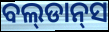
ବଲ୍‌ଡାନ୍‌ସ